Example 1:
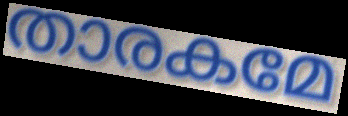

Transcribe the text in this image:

താരകമേ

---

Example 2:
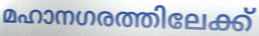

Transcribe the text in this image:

മഹാനഗരത്തിലേക്ക്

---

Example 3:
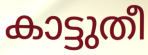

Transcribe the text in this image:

കാട്ടുതീ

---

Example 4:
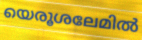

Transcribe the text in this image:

യെരൂശലേമിൽ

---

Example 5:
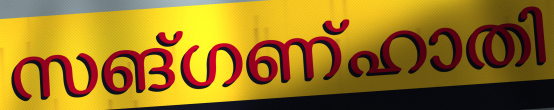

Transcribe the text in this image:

സങ്ഗണ്ഹാതി